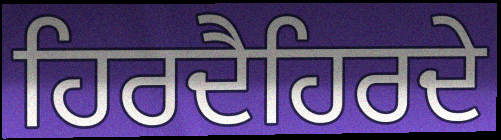
ਹਿਰਦੈਹਿਰਦੇ